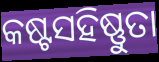
କଷ୍ଟସହିଷ୍ଣୁତା